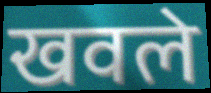
खवले